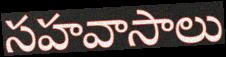
సహవాసాలు